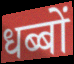
धब्बों